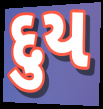
દુય